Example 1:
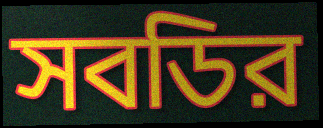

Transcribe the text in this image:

সবডির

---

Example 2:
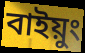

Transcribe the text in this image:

বাইয়ুং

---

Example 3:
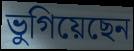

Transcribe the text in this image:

ভুগিয়েছেন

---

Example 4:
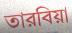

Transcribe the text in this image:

তারবিয়া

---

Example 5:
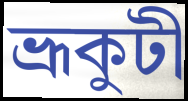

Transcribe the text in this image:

ভ্রূকুটী